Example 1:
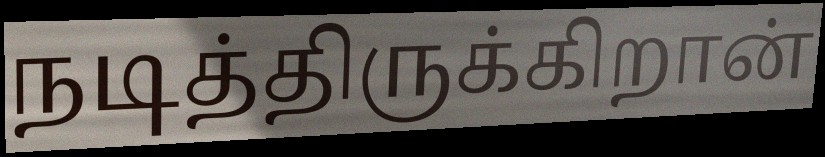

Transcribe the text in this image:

நடித்திருக்கிறான்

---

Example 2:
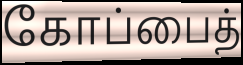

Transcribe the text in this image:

கோப்பைத்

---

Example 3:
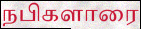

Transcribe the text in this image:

நபிகளாரை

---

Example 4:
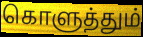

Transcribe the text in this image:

கொளுத்தும்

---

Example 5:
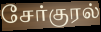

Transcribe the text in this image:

சேர்குரல்